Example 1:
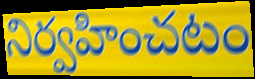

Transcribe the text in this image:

నిర్వహించటం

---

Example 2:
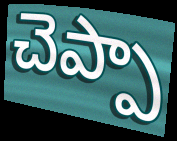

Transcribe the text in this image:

చెప్పా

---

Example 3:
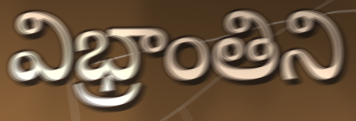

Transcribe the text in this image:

విభ్రాంతిని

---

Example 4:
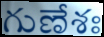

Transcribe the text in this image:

గుణేశః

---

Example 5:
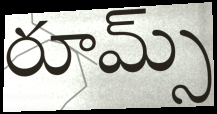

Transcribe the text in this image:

రూమ్స్